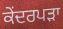
ਕੇਂਦਰਪੜਾ